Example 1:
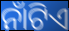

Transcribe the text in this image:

ନାଁଟିଏ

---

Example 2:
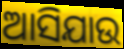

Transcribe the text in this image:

ଆସିଯାଉ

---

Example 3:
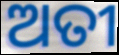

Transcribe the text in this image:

ଅତୀ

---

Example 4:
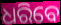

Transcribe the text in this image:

ଧରିବେ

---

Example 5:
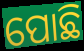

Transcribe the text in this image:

ପୋଛି